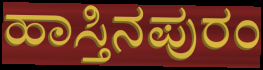
ಹಾಸ್ತಿನಪುರಂ